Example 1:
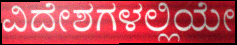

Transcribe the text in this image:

ವಿದೇಶಗಳಲ್ಲಿಯೇ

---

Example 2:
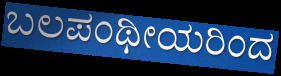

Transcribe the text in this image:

ಬಲಪಂಥೀಯರಿಂದ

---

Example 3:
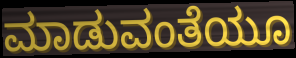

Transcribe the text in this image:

ಮಾಡುವಂತೆಯೂ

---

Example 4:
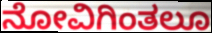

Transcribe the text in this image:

ನೋವಿಗಿಂತಲೂ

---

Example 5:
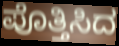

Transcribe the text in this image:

ಪೊತ್ತಿಸಿದ